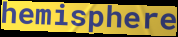
hemisphere